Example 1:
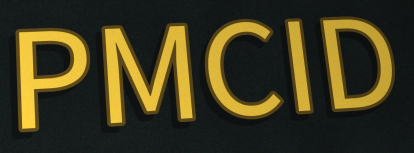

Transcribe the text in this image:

PMCID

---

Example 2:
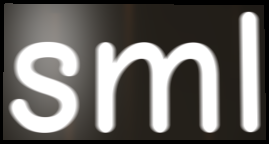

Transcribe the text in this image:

sml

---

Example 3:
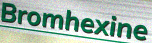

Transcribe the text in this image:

Bromhexine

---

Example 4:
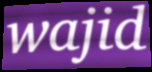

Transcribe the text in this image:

wajid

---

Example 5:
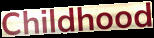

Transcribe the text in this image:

Childhood